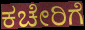
ಕಚೇರಿಗೆ